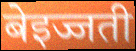
बेइज्‍जती